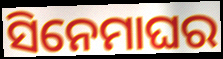
ସିନେମାଘର